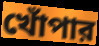
খোঁপার